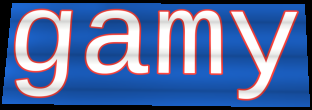
gamy